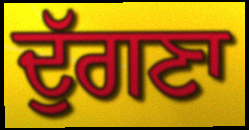
ਦੁੱਗਣਾ